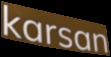
karsan